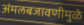
अंमलबजावणीमुळे